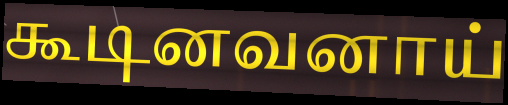
கூடினவனாய்